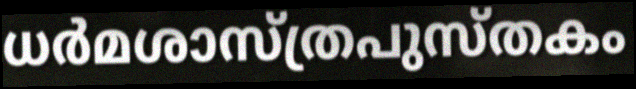
ധർമശാസ്ത്രപുസ്തകം